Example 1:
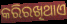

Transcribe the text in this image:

କରିରଖିଥାଏ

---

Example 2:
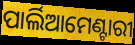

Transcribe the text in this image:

ପାର୍ଲିଆମେଣ୍ଟାରୀ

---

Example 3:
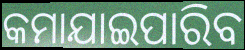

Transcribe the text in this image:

କମାଯାଇପାରିବ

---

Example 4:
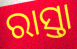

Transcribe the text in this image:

ରାସ୍ତା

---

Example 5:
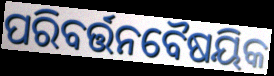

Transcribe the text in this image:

ପରିବର୍ତ୍ତନବୈଷୟିକ